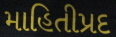
માહિતીપ્રદ